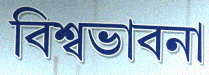
বিশ্বভাবনা